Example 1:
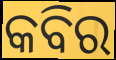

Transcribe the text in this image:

କବିର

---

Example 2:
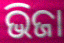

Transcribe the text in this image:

ଭିଜା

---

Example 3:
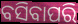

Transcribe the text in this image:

ବସିବାପରି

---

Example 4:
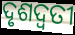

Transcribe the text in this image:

ଦୃଶଦ୍ୱତୀ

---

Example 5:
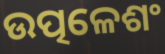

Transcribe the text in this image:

ଉତ୍ପଳେଶଂ